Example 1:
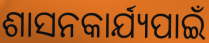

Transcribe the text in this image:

ଶାସନକାର୍ଯ୍ୟପାଇଁ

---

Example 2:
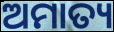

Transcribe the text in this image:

ଅମାତ୍ୟ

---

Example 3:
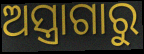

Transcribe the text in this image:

ଅସ୍ତ୍ରାଗାରୁ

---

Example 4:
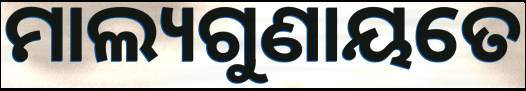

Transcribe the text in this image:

ମାଲ୍ୟଗୁଣାୟତେ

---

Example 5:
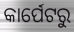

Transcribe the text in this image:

କାର୍ପେଟରୁ